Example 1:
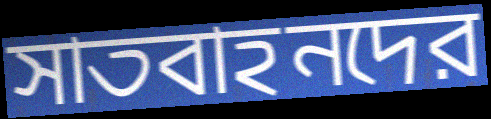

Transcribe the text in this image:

সাতবাহনদের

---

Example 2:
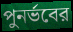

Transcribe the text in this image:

পুনর্ভবের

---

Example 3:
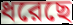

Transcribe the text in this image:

ধরেছে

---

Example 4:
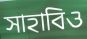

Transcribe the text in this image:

সাহাবিও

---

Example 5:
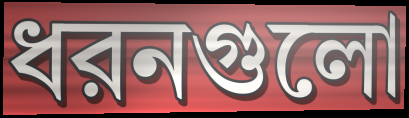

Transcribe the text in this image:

ধরনগুলো